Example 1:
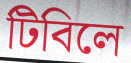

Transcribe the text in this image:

টিবিলে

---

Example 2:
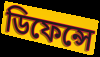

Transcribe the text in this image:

ডিফেন্সে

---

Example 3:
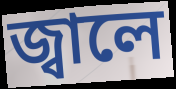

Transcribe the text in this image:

জ্বালে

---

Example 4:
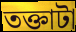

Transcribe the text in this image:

তক্তাটা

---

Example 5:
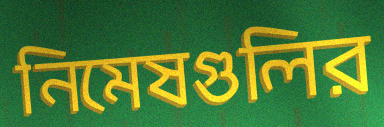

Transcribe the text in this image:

নিমেষগুলির